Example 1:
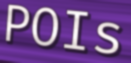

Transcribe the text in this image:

POIs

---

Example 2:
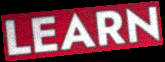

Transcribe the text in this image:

LEARN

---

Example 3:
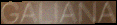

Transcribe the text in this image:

GALIANA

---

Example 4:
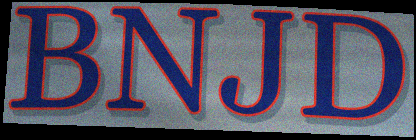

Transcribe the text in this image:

BNJD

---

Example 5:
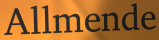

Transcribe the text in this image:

Allmende